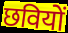
छवियों